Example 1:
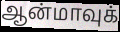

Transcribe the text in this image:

ஆன்மாவுக்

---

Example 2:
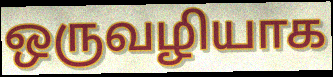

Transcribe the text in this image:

ஒருவழியாக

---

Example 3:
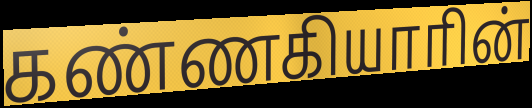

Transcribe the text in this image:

கண்ணகியாரின்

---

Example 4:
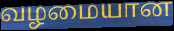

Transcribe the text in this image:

வழமையான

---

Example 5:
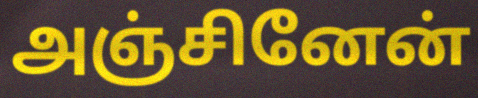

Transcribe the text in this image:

அஞ்சினேன்